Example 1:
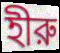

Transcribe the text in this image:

হীরু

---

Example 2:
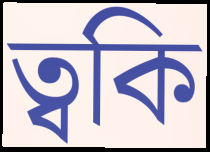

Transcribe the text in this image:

ত্বকি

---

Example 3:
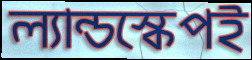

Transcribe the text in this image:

ল্যান্ডস্কেপই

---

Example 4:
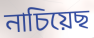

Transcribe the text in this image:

নাচিয়েছ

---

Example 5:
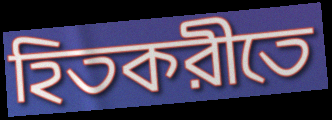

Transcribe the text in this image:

হিতকরীতে